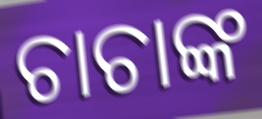
ଚାଚାଙ୍କ